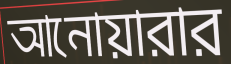
আনোয়ারার